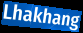
Lhakhang